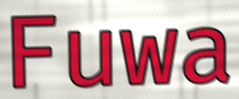
Fuwa